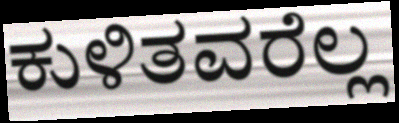
ಕುಳಿತವರೆಲ್ಲ